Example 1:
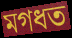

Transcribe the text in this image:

মগধত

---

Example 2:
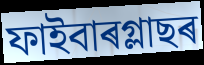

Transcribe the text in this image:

ফাইবাৰগ্লাছৰ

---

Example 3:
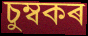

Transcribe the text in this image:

চুম্বকৰ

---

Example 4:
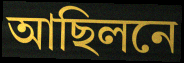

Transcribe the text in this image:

আছিলনে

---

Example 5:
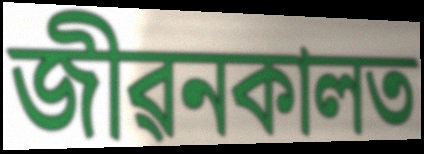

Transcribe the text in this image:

জীৱনকালত